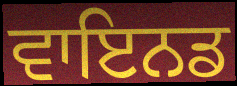
ਵਾਇਨਡ